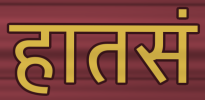
हातसं